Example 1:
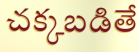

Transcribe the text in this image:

చక్కబడితే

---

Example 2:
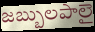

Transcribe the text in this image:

జబ్బులపాలై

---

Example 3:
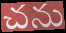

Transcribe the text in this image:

చను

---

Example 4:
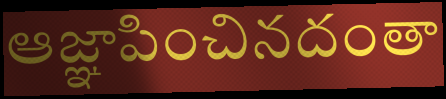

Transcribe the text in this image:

ఆజ్ఞాపించినదంతా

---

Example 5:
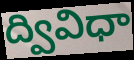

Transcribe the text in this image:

ద్వివిధా